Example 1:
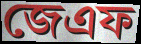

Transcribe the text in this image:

জেএফ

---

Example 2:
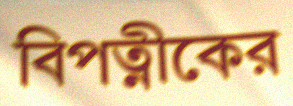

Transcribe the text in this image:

বিপত্নীকের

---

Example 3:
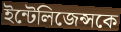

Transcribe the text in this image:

ইন্টেলিজেন্সকে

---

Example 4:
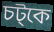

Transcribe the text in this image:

চট্‌কে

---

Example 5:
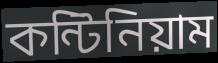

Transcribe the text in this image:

কন্টিনিয়াম